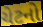
ચેટનો